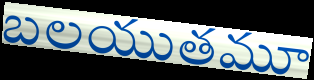
బలయుతమూ